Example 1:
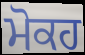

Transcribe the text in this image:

ਮੋਕਹ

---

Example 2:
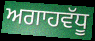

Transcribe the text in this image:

ਅਗਾਹਵੱਧੂ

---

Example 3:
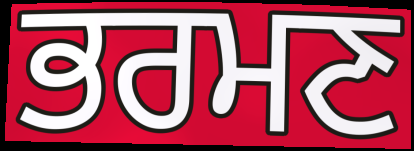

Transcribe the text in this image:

ਭਰਮਣ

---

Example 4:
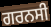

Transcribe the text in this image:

ਗਰਨਸੀ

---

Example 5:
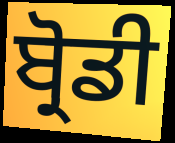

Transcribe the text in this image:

ਬ੍ਰੋਡੀ